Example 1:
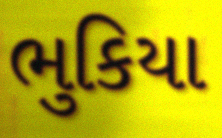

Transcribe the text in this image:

ભુકિયા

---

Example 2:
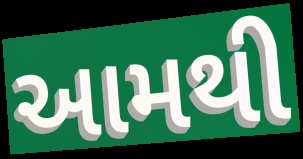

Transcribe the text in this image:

આમથી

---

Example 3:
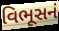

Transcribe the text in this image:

વિભૂસનં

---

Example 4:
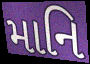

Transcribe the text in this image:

માનિ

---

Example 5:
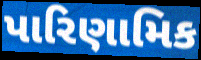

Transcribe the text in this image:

પારિણામિક